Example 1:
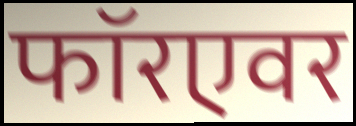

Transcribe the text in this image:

फॉरएवर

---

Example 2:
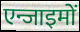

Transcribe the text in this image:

एन्जाइमों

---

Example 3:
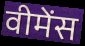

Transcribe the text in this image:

वीमेंस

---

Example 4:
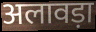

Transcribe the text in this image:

अलावड़ा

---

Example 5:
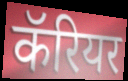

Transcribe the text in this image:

कॅरियर